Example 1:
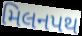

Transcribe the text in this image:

મિલનપથ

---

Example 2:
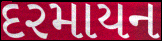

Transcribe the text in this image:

દરમાયન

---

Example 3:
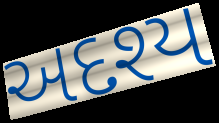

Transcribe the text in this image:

અદશ્ય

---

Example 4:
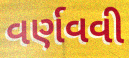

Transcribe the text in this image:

વર્ણવવી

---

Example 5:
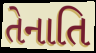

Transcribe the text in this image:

તેનાતિ